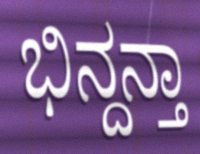
ಭಿನ್ದನ್ತಾ